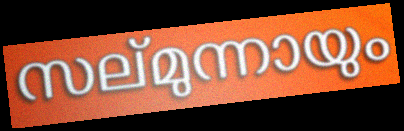
സല്മുന്നായും